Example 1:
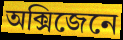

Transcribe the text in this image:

অক্সিজেনে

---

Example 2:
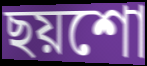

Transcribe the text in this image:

ছয়শো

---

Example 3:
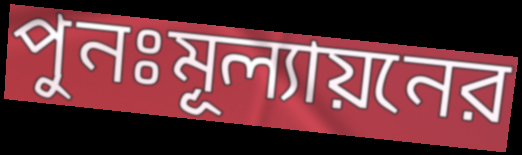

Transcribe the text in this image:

পুনঃমূল্যায়নের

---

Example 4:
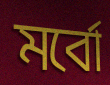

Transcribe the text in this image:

মর্বো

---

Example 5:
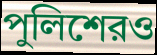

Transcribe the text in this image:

পুলিশেরও